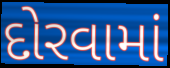
દોરવામાં